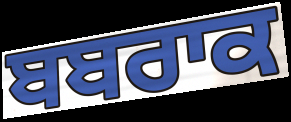
ਬਬਰਾਕ